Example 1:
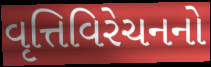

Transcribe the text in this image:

વૃત્તિવિરેચનનો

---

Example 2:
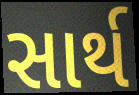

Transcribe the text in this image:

સાર્થ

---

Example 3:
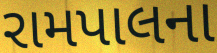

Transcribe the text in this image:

રામપાલના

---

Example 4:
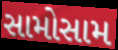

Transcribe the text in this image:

સામોસામ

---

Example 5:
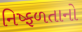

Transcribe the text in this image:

નિષ્ફળતાનો